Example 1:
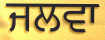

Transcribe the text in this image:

ਜਲਵਾ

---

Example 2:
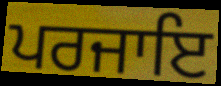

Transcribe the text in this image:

ਪਰਜਾਇ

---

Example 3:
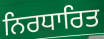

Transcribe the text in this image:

ਨਿਰਧਾਰਿਤ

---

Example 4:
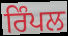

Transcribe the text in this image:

ਰਿੰਪਲ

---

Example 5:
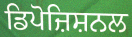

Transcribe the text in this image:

ਡਿਪੋਜ਼ਿਸ਼ਨਲ